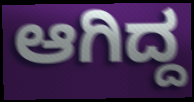
ಆಗಿದ್ದ